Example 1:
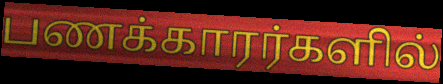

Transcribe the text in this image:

பணக்காரர்களில்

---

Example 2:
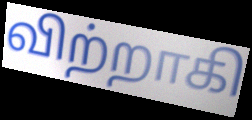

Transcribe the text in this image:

விற்றாகி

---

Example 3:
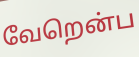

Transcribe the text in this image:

வேறென்ப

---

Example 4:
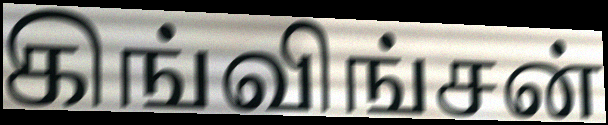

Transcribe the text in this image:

கிங்விங்சன்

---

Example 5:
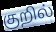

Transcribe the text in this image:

குறில்